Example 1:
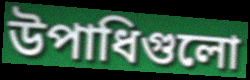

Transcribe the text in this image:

উপাধিগুলো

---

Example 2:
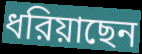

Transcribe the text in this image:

ধরিয়াছেন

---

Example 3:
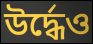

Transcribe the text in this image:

উর্দ্ধেও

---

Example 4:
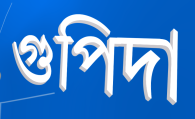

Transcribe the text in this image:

গুপিদা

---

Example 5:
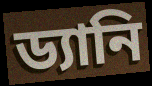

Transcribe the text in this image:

ড্যানি